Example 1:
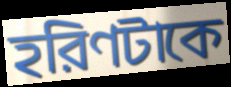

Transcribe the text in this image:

হরিণটাকে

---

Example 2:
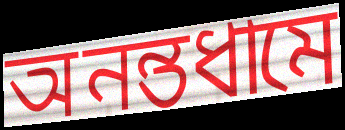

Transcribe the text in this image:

অনন্তধামে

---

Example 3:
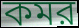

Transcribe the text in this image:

কমর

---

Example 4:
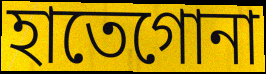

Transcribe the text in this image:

হাতেগোনা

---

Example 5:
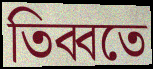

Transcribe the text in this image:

তিব্বতে